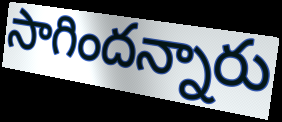
సాగిందన్నారు